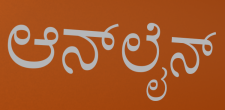
ಆನ್‌ಲೈನ್